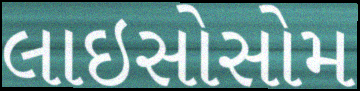
લાઇસોસોમ